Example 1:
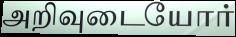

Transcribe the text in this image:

அறிவுடையோர்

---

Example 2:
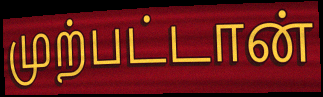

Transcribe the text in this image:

முற்பட்டான்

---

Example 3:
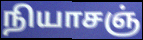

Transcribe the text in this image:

நியாசஞ்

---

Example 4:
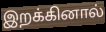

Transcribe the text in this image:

இறக்கினால்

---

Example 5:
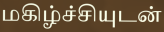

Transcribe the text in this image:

மகிழ்ச்சியுடன்